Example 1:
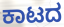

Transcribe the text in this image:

ಕಾಟದ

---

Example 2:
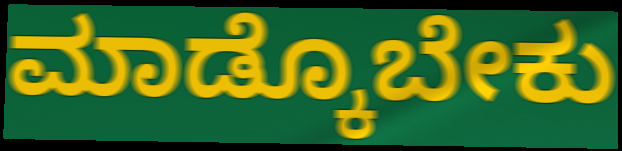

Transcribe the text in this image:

ಮಾಡ್ಕೊಬೇಕು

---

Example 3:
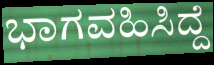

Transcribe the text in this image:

ಭಾಗವಹಿಸಿದ್ದೆ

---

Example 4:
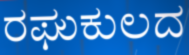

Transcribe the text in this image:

ರಘುಕುಲದ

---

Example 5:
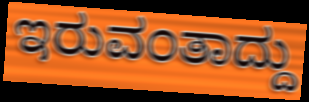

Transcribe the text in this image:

ಇರುವಂತಾದ್ದು